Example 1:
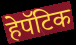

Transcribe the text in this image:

हेपॅटिक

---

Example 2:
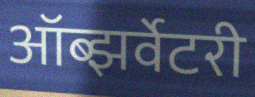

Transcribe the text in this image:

ऑब्झर्वेटरी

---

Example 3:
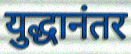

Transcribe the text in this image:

युद्धानंतर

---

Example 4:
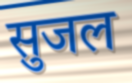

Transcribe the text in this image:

सुजल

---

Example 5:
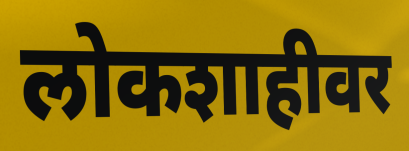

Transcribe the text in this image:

लोकशाहीवर